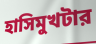
হাসিমুখটার